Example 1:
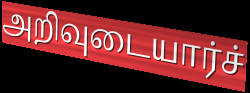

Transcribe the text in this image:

அறிவுடையார்ச்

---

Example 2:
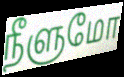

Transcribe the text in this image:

நீளுமோ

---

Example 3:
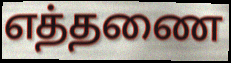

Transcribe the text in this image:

எத்தணை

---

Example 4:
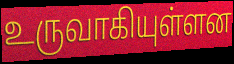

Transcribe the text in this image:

உருவாகியுள்ளன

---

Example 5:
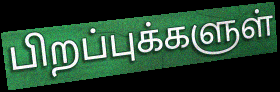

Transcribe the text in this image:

பிறப்புக்களுள்